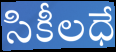
సికీలధే